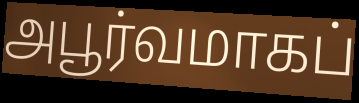
அபூர்வமாகப்